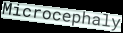
Microcephaly